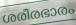
ശരീരഭാരം